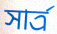
সার্ত্র